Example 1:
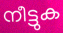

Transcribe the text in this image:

നീട്ടുക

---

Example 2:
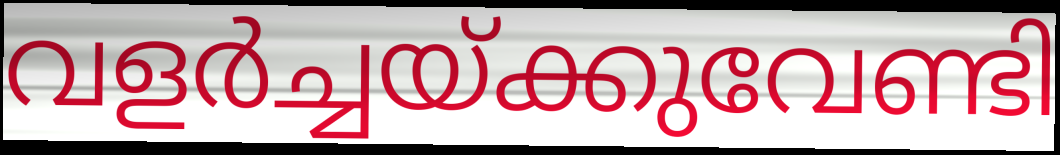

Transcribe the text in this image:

വളർച്ചയ്ക്കുവേണ്ടി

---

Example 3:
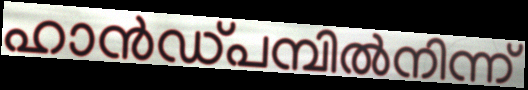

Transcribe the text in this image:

ഹാൻഡ്പമ്പിൽനിന്ന്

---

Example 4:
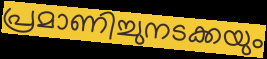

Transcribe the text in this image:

പ്രമാണിച്ചുനടക്കയും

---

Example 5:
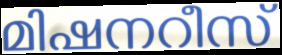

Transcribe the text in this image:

മിഷനറീസ്